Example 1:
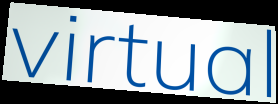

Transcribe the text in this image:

virtual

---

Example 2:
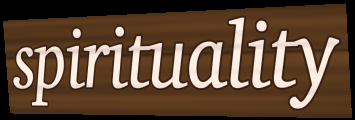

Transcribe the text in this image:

spirituality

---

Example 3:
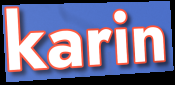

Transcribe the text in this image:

karin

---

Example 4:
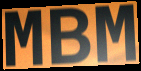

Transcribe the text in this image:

MBM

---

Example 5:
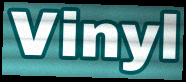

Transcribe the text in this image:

Vinyl